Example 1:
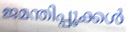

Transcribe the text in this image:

ജമന്തിപ്പൂക്കൾ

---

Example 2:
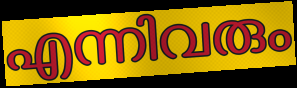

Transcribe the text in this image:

എന്നിവരും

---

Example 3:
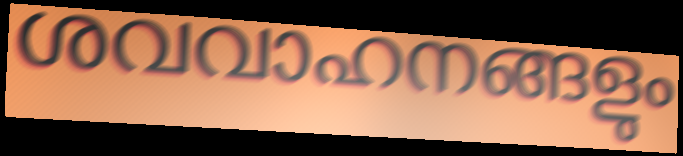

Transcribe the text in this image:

ശവവാഹനങ്ങളും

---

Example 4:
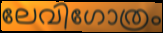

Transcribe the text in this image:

ലേവിഗോത്രം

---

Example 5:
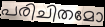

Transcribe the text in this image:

പരിചിതമോ